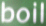
boil